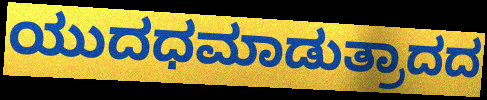
ಯುದಧಮಾಡುತ್ರಾದದ